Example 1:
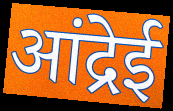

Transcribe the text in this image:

आंद्रेई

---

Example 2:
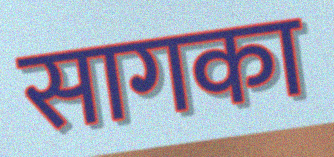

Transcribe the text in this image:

सागका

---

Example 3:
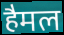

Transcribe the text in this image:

हैमल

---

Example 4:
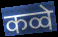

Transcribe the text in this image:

कव्वे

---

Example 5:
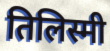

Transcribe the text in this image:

तिलिस्मी